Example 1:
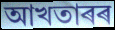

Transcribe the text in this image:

আখতাৰৰ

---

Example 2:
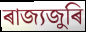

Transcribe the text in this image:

ৰাজ্যজুৰি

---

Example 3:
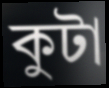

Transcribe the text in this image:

কুটা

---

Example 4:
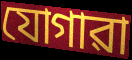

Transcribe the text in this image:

যোগাৱা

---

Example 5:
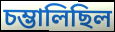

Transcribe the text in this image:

চম্ভালিছিল